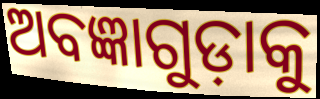
ଅବଜ୍ଞାଗୁଡ଼ାକୁ